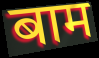
बाम